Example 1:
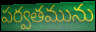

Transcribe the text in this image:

పర్వతమును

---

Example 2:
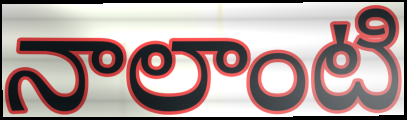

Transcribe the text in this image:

నాలాంటి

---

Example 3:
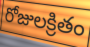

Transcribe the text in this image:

రోజులక్రితం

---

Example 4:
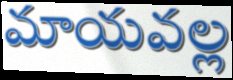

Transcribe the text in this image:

మాయవల్ల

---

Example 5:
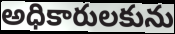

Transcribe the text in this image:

అధికారులకును